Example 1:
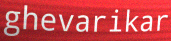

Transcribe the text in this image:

ghevarikar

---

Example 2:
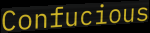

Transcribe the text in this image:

Confucious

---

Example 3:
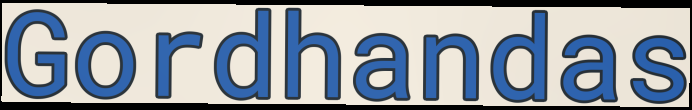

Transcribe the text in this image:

Gordhandas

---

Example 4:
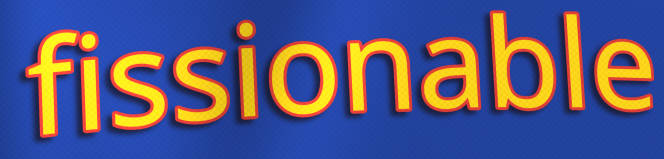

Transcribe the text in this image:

fissionable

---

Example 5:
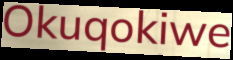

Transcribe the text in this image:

Okuqokiwe